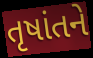
તૃષાંતને